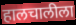
हालचालीला